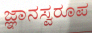
ಜ್ಞಾನಸ್ವರೂಪ